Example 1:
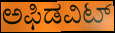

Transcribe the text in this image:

ಅಫಿಡವಿಟ್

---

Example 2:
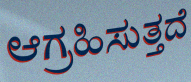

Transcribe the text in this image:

ಆಗ್ರಹಿಸುತ್ತದೆ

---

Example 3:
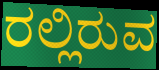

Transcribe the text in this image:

ರಲ್ಲಿರುವ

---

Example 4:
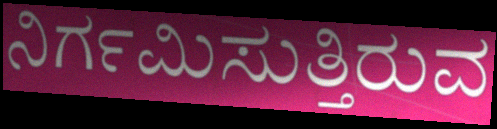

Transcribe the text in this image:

ನಿರ್ಗಮಿಸುತ್ತಿರುವ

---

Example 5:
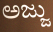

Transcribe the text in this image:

ಅಜ್ಜು